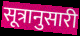
सूत्रानुसारी